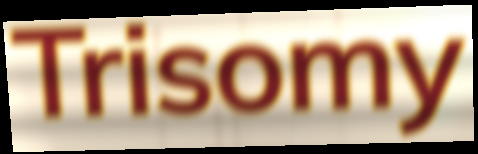
Trisomy